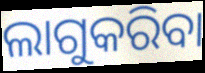
ଲାଗୁକରିବା